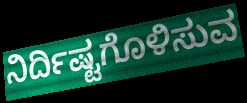
ನಿರ್ದಿಷ್ಟಗೊಳಿಸುವ